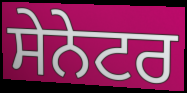
ਸੇਨੇਟਰ